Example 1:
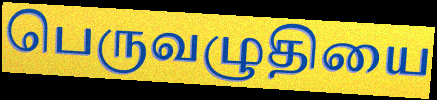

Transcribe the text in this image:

பெருவழுதியை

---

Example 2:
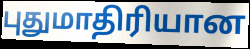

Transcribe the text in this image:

புதுமாதிரியான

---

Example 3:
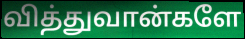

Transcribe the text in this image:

வித்துவான்களே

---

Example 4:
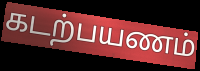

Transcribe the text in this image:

கடற்பயணம்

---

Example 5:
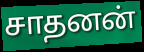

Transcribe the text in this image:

சாதனன்